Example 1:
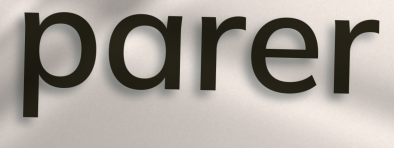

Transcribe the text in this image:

parer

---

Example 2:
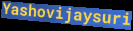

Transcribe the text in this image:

Yashovijaysuri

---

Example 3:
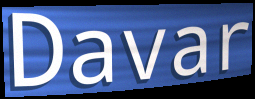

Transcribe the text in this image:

Davar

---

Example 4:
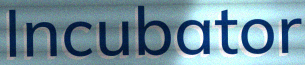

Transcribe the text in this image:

Incubator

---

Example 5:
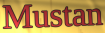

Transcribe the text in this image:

Mustan